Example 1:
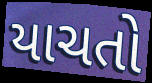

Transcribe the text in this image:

યાચતો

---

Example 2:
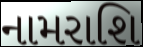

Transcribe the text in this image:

નામરાશિ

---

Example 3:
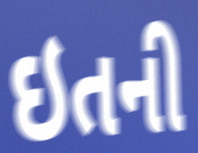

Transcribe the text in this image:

ઇતની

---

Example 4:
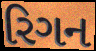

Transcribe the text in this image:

રિગન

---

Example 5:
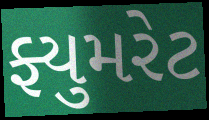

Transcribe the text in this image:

ફ્યુમરેટ